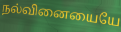
நல்வினையையே